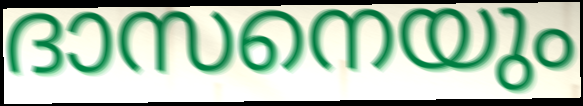
ദാസനെയും